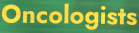
Oncologists